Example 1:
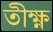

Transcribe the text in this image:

তীক্ষ্ণ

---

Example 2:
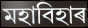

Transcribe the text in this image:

মহাবিহাৰ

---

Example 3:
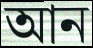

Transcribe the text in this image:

আন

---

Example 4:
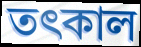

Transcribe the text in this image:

তৎকাল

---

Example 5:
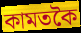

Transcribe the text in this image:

কামতকৈ